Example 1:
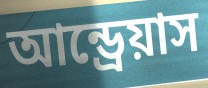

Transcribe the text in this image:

আন্ড্রেয়াস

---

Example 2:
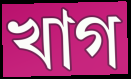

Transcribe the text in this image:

খাগ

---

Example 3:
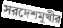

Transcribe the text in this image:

সরদেশমুখীর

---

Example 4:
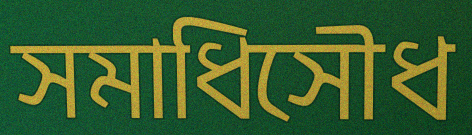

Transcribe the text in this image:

সমাধিসৌধ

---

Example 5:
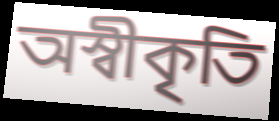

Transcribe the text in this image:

অস্বীকৃতি